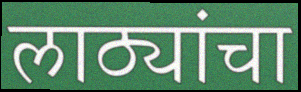
लाठ्यांचा